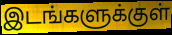
இடங்களுக்குள்